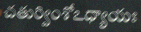
చతుర్వింశోఽధ్యాయః